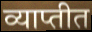
व्याप्तीत